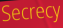
Secrecy